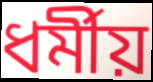
ধৰ্মীয়